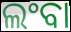
ଲଂବା